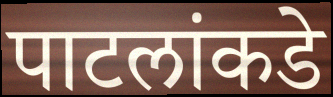
पाटलांकडे